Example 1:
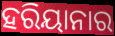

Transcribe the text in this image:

ହରିୟାନାର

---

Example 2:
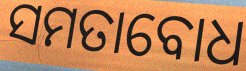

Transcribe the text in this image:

ସମତାବୋଧ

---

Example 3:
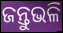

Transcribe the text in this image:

ଜନ୍ତୁଭଳି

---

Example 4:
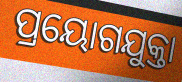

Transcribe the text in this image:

ପ୍ରୟୋଗଯୁକ୍ତା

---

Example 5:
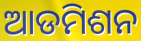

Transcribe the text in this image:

ଆଡମିଶନ